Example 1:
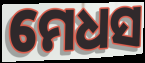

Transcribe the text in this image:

ମେଧସ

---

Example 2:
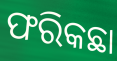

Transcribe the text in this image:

ଫରିକଛା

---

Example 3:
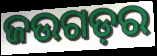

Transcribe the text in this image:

ଜଉଗଡ଼ର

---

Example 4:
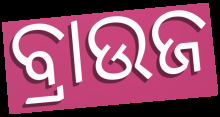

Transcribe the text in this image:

ବ୍ରାଉଜ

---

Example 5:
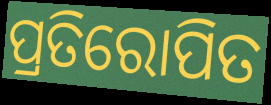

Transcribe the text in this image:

ପ୍ରତିରୋପିତ